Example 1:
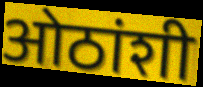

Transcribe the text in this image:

ओठांशी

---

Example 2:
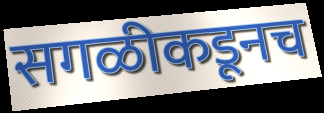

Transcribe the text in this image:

सगळीकडूनच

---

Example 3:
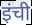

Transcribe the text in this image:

इंची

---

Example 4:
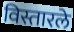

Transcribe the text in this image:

विस्तारले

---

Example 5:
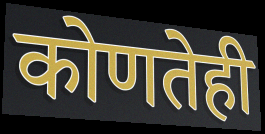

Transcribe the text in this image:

कोणतेही